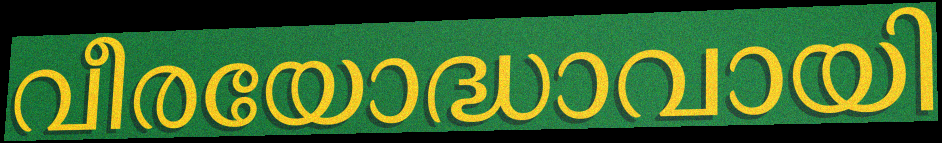
വീരയോദ്ധാവായി